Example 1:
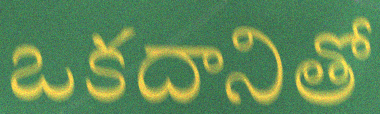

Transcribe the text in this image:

ఒకదానితో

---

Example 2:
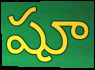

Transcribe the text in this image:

షూ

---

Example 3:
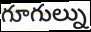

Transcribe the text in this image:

గూగుల్ను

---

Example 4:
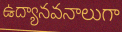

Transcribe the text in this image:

ఉద్యానవనాలుగా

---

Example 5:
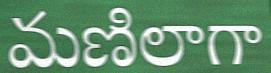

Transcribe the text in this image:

మణిలాగా